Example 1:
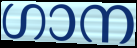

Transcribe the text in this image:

ഗാന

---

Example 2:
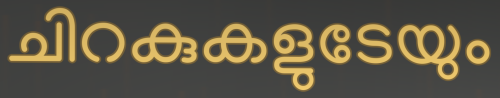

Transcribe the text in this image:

ചിറകുകളുടേയും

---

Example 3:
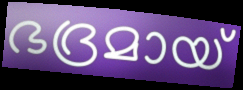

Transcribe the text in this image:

ഭദ്രമായ്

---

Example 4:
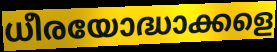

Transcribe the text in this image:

ധീരയോദ്ധാക്കളെ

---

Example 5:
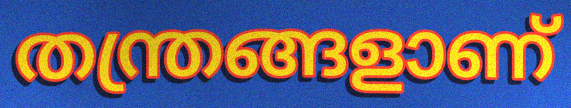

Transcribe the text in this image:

തന്ത്രങ്ങളാണ്